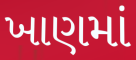
ખાણમાં